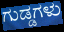
ಗುಡ್ಡಗಳು